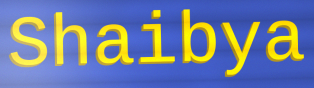
Shaibya